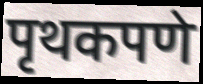
पृथकपणे